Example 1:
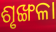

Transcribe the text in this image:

ଶୃଙ୍ଖଳା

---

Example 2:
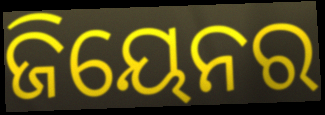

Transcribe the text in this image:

ଜିୟେନର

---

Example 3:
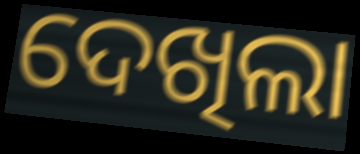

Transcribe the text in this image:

ଦେଖିଲା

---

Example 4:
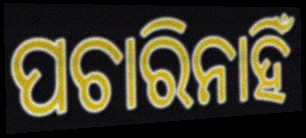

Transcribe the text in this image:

ପଚାରିନାହିଁ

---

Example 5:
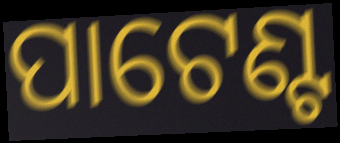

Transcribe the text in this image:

ପାଟେଣ୍ଟ